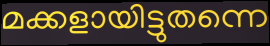
മക്കളായിട്ടുതന്നെ